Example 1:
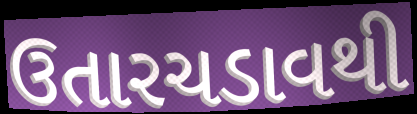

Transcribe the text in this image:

ઉતારચડાવથી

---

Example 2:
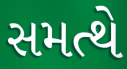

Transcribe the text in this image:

સમત્થે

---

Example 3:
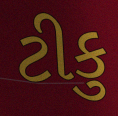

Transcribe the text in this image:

ટીકુ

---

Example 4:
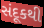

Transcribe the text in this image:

સંદૂકથી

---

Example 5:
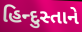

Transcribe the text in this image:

હિન્દુસ્તાને